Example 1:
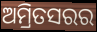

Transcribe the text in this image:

ଅମ୍ରିତସରର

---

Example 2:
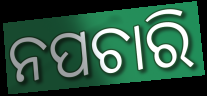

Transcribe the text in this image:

ନପଚାରି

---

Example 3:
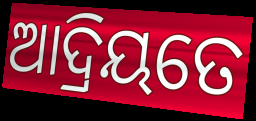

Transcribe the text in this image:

ଆଦ୍ରିୟତେ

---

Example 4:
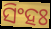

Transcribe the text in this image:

ସିଂହଃ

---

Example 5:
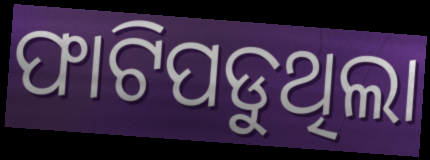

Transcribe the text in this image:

ଫାଟିପଡୁଥିଲା